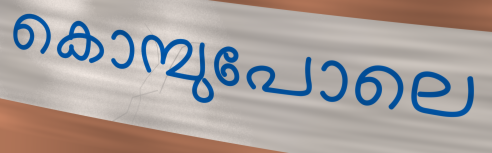
കൊമ്പുപോലെ